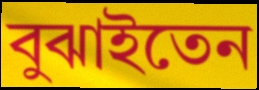
বুঝাইতেন